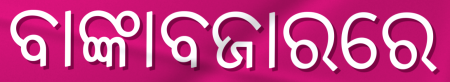
ବାଙ୍କାବଜାରରେ